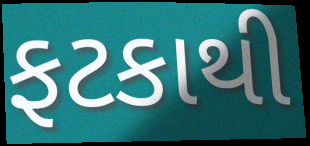
ફટકાથી